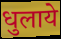
धुलाये